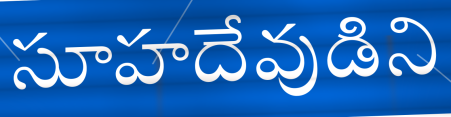
సూహదేవుడిని